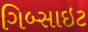
ગિબ્સાઇટ